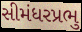
સીમંધરપ્રભુ